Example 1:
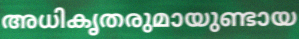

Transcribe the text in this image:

അധികൃതരുമായുണ്ടായ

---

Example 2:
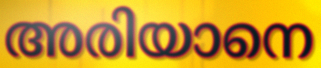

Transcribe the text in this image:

അരിയാനെ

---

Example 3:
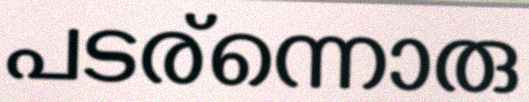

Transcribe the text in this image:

പടര്ന്നൊരു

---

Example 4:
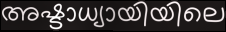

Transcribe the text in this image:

അഷ്ടാധ്യായിയിലെ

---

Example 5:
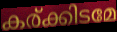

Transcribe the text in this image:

കര്ക്കിടമേ